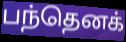
பந்தெனக்